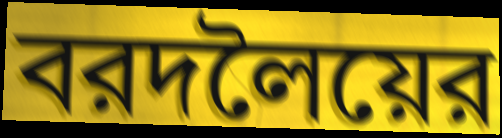
বরদলৈয়ের